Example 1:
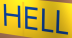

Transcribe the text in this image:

HELL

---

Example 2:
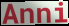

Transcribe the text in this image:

Anni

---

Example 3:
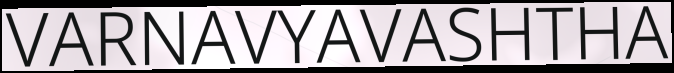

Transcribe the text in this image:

VARNAVYAVASHTHA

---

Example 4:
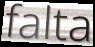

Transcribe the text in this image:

falta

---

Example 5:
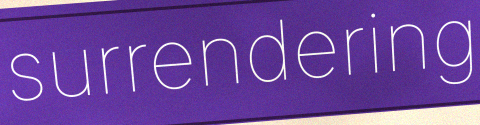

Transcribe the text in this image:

surrendering